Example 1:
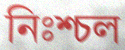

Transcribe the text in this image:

নিঃশ্চল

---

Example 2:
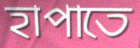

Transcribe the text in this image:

হাপাতে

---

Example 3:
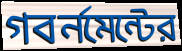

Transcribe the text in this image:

গবর্নমেন্টের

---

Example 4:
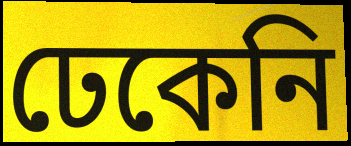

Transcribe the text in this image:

ঢেকেনি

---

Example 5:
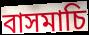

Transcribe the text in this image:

বাসমাচি